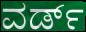
ವರ್ಡ್